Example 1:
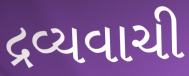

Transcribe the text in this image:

દ્રવ્યવાચી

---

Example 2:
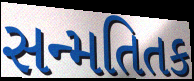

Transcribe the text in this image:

સન્મતિતક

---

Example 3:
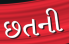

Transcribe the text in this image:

છતની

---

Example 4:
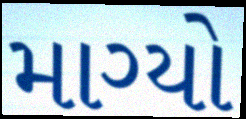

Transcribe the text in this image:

માગ્યો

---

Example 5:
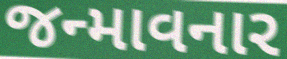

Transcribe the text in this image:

જન્માવનાર